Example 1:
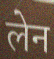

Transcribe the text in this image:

लेन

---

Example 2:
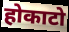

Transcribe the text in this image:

होकाटो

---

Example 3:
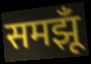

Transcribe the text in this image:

समझूँ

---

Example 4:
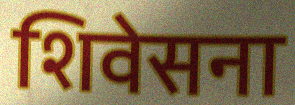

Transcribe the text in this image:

शिवेसना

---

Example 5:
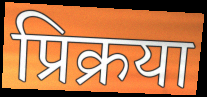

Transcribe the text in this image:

प्रिक्रया